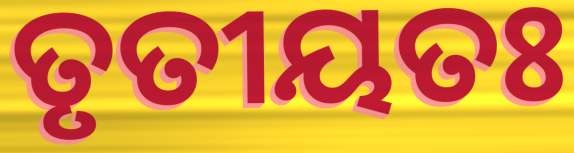
ତୃତୀୟତଃ